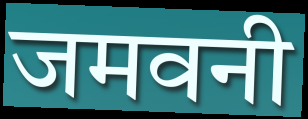
जमवनी